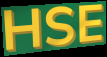
HSE